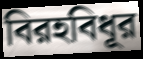
বিরহবিধূর